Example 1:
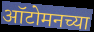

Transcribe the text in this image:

ऑटोमनच्या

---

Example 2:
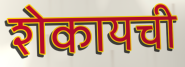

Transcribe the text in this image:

शेकायची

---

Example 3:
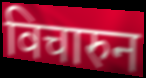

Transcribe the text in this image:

विचारुन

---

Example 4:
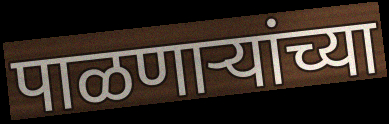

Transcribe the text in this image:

पाळणाऱ्यांच्या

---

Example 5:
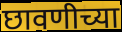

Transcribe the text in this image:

छावणीच्या